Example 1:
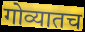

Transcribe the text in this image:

गोव्यातच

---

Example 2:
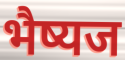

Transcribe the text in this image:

भैष्यज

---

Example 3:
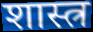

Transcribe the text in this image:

शास्त्र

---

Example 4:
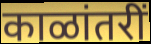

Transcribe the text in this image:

काळांतरीं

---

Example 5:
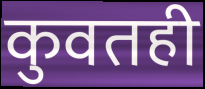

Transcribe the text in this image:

कुवतही